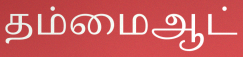
தம்மைஆட்